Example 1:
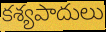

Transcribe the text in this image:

కశ్యపాదులు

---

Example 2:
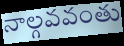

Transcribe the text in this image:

నాల్గవవంతు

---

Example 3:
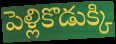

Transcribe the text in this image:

పెళ్లికొడుక్కి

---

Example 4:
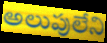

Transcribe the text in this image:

అలుపులేని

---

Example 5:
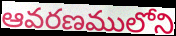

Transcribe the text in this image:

ఆవరణములోని